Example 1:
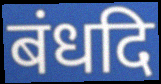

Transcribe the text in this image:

बंधदि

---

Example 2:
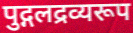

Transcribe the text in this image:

पुद्गलद्रव्यरूप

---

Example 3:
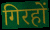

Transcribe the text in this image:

गिरहों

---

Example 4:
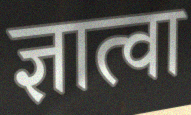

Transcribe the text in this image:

ज्ञात्वा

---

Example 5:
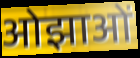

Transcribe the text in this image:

ओझाओं